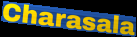
Charasala